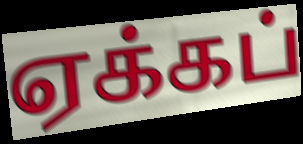
ஏக்கப்